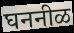
घननीळ